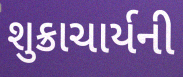
શુક્રાચાર્યની